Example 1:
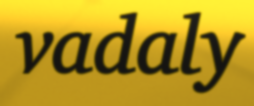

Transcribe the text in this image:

vadaly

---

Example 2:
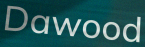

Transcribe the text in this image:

Dawood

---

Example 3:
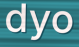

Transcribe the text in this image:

dyo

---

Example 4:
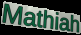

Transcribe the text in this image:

Mathiah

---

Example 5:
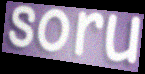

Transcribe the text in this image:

soru